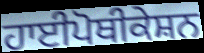
ਹਾਈਪੋਥੀਕੇਸ਼ਨ